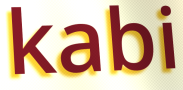
kabi